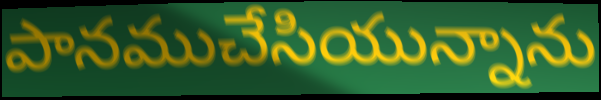
పానముచేసియున్నాను